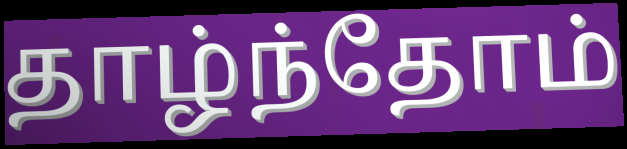
தாழ்ந்தோம்